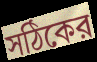
সঠিকের